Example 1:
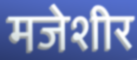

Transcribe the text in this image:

मजेशीर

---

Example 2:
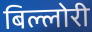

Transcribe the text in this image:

बिल्लोरी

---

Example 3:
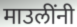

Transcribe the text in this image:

माउलींनी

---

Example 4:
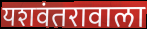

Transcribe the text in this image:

यशवंतरावाला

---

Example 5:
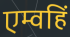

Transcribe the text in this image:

एम्वहिं